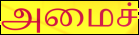
அமைச்